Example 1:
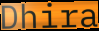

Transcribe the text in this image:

Dhira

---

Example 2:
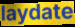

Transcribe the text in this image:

laydate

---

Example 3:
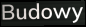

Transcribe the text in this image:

Budowy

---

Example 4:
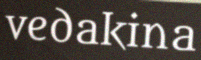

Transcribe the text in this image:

vedakina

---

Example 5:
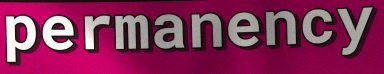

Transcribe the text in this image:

permanency